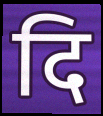
दि